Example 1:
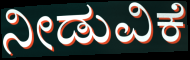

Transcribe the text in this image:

ನೀಡುವಿಕೆ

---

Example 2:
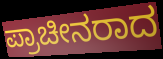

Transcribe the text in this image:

ಪ್ರಾಚೀನರಾದ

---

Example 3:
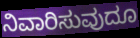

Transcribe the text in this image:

ನಿವಾರಿಸುವುದೂ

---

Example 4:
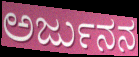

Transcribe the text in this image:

ಅರ್ಜುನನ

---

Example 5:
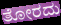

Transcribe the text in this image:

ತೋರದು